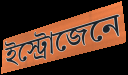
ইস্ট্রোজেনে